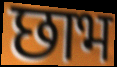
छाभ